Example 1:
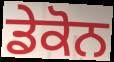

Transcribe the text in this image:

ਡੇਕੋਨ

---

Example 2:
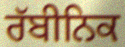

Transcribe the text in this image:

ਰੱਬੀਨਿਕ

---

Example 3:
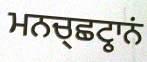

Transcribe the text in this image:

ਮਨਚ੍ਛਟ੍ਠਾਨਂ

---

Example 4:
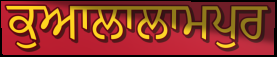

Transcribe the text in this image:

ਕੁਆਲਾਲਾਮਪੁਰ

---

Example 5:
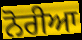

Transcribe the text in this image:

ਨੋਰੀਆ